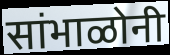
सांभाळोनी